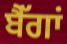
ਬੈੱਗਾਂ